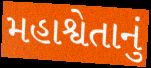
મહાશ્વેતાનું